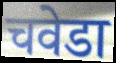
चवेडा